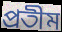
প্রতীম